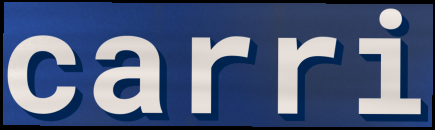
carri